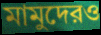
মামুদেরও